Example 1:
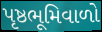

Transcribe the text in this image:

પૃષ્ઠભૂમિવાળો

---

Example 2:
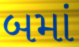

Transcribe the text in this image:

બમાં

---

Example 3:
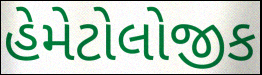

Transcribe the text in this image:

હેમેટોલોજીક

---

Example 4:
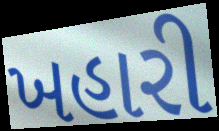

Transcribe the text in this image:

ખહારી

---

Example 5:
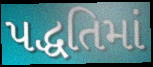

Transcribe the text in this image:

પદ્ધતિમાં